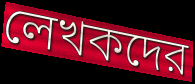
লেখকদের